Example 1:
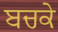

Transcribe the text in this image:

ਬਚਕੇ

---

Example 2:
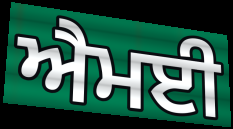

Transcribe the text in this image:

ਐਮਈ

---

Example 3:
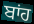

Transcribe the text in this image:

ਬਾਂਹ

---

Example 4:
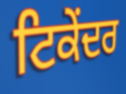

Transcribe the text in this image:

ਟਿਕੇਂਦਰ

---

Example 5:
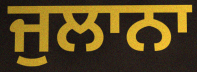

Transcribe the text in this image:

ਜੁਲਾਨਾ